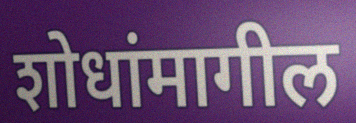
शोधांमागील